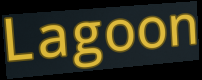
Lagoon